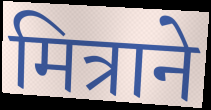
मित्राने